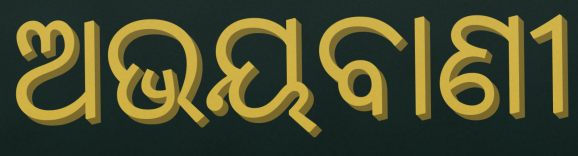
ଅଭୟବାଣୀ